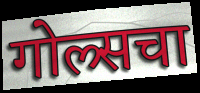
गोल्सचा